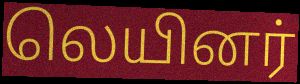
லெயினர்